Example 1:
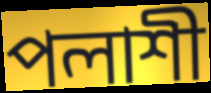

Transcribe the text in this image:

পলাশী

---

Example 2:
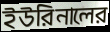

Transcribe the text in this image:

ইউরিনালের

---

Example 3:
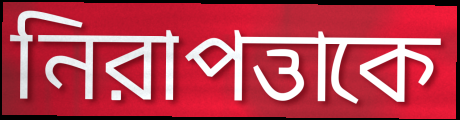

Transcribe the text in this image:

নিরাপত্তাকে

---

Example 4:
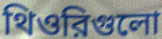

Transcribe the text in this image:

থিওরিগুলো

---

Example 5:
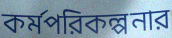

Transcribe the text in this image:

কর্মপরিকল্পনার